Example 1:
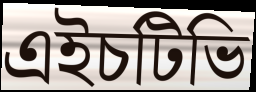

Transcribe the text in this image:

এইচটিভি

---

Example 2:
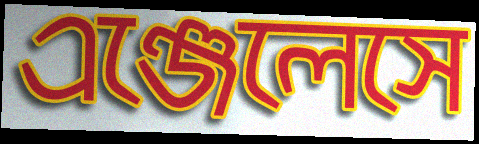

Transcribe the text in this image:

এঞ্জেলেসে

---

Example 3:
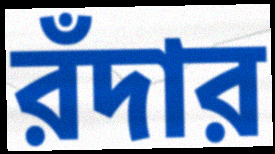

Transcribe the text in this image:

রঁদার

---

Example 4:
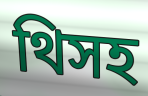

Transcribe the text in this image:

থিসহ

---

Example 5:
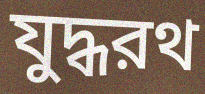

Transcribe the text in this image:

যুদ্ধরথ